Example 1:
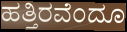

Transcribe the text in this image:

ಹತ್ತಿರವೆಂದೂ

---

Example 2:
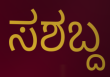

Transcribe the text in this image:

ಸಶಬ್ದ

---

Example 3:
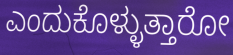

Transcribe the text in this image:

ಎಂದುಕೊಳ್ಳುತ್ತಾರೋ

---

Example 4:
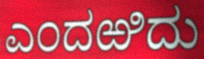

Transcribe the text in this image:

ಎಂದಱಿದು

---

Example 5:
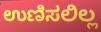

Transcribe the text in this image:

ಉಣಿಸಲಿಲ್ಲ